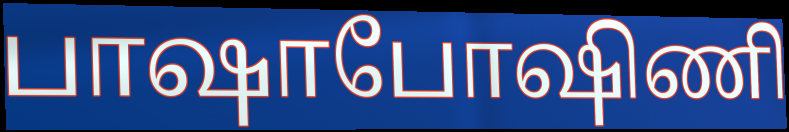
பாஷாபோஷிணி